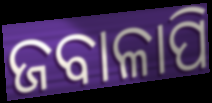
ଜବାଳାପି